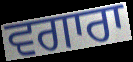
ਵਗਾਰਾ